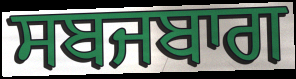
ਸਬਜਬਾਗ